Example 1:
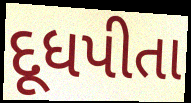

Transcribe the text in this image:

દૂધપીતા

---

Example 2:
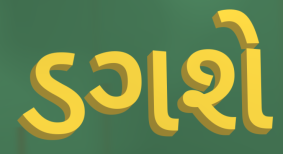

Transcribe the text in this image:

ડગશે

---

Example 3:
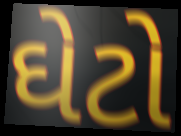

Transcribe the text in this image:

ઘેટો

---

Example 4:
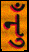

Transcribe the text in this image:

નુઁ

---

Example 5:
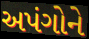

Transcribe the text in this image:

અપંગોને